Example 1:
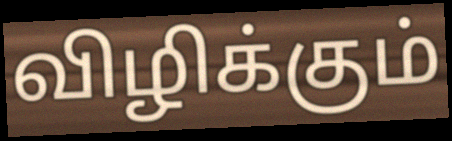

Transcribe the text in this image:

விழிக்கும்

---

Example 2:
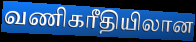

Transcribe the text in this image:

வணிகரீதியிலான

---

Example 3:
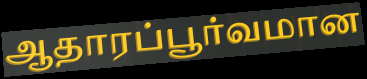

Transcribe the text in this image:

ஆதாரப்பூர்வமான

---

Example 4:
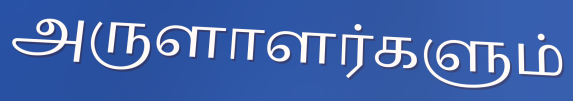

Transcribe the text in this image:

அருளாளர்களும்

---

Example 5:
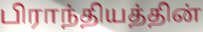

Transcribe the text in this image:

பிராந்தியத்தின்